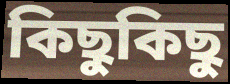
কিছুকিছু